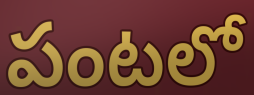
పంటలో